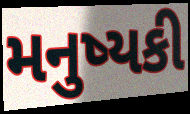
મનુષ્યકી